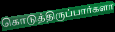
கொடுத்திருப்பார்களா